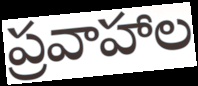
ప్రవాహాల